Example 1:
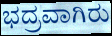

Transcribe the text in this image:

ಭದ್ರವಾಗಿರು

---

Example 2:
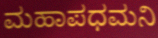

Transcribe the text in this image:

ಮಹಾಪಧಮನಿ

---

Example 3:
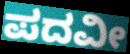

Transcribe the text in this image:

ಪದವೀ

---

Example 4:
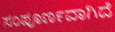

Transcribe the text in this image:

ಸಂಪೂರ್ಣವಾಗಿದೆ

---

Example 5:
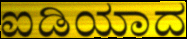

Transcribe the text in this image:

ಐಡಿಯಾದ